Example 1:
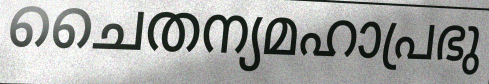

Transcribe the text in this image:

ചൈതന്യമഹാപ്രഭു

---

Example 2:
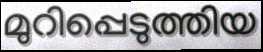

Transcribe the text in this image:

മുറിപ്പെടുത്തിയ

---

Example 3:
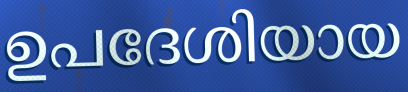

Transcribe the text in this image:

ഉപദേശിയായ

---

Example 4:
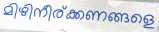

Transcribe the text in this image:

മിഴിനീര്ക്കണങ്ങളെ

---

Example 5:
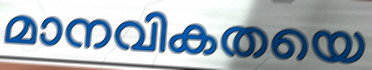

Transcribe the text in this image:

മാനവികതയെ